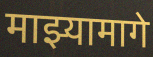
माझ्यामागे